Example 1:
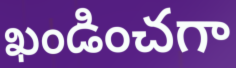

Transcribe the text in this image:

ఖండించగా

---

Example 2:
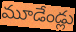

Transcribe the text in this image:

మూడేండ్లు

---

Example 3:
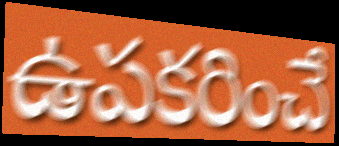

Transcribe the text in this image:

ఉపకరించే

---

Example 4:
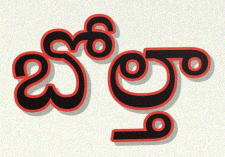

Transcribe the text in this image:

బోల్తా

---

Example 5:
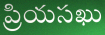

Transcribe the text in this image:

ప్రియసఖు